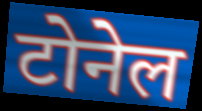
टोनेल